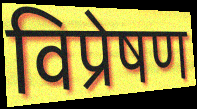
विप्रेषण